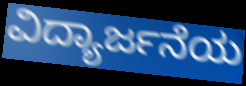
ವಿದ್ಯಾರ್ಜನೆಯ